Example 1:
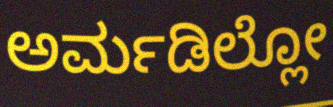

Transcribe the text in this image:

ಅರ್ಮಡಿಲ್ಲೋ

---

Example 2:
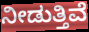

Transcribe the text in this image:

ನೀಡುತ್ತಿವೆ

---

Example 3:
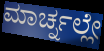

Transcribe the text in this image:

ಮಾರ್ಚ್ನಲ್ಲೇ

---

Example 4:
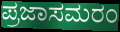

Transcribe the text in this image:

ಪ್ರಜಾಸಮರಂ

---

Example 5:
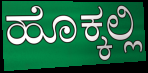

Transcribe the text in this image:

ಹೊಕ್ಕಲ್ಲಿ